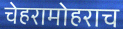
चेहरामोहराच